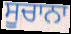
ਸੂਚਾਨਾ